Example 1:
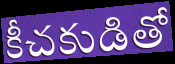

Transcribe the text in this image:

కీచకుడితో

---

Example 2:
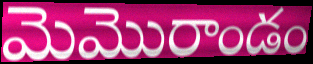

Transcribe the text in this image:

మెమొరాండం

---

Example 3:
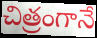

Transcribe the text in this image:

చిత్రంగానే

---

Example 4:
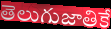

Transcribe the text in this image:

తెలుగుజాతికే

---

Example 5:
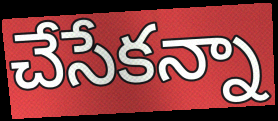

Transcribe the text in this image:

చేసేకన్నా